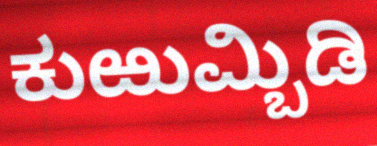
ಕುಱುಮ್ಬಿಡಿ